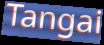
Tangai